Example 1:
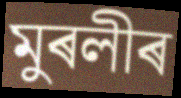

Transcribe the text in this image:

মুৰলীৰ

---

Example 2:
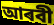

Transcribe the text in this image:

আৰবী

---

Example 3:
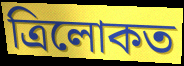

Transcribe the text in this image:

ত্ৰিলোকত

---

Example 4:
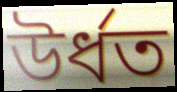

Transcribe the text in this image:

উৰ্ধত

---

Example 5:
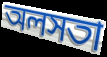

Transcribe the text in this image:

অলসতা